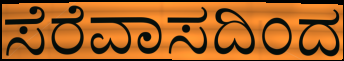
ಸೆರೆವಾಸದಿಂದ